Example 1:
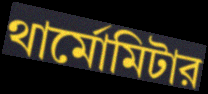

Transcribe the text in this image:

থার্মোমিটার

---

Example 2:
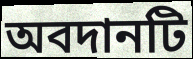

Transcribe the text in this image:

অবদানটি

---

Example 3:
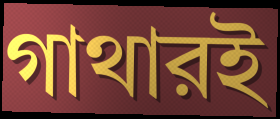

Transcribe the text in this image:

গাথারই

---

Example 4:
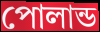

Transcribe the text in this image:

পোলান্ড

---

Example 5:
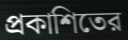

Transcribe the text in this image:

প্রকাশিতের